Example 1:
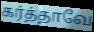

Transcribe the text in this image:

கர்த்தாவே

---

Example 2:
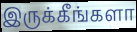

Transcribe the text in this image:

இருக்கீங்களா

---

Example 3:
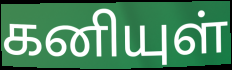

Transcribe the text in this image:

கனியுள்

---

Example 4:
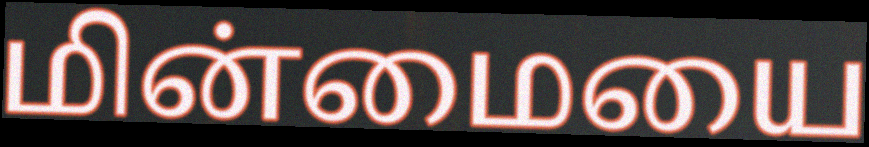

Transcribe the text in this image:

மின்மையை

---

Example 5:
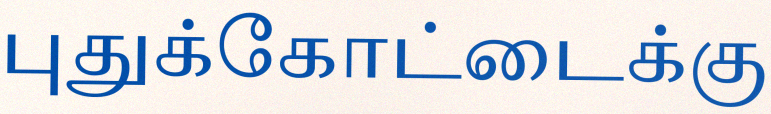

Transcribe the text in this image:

புதுக்கோட்டைக்கு